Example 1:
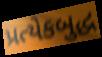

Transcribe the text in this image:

પ્રત્યેકબુદ્ધ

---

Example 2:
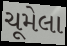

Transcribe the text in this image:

ચૂમેલા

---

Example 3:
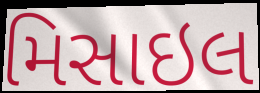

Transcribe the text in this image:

મિસાઇલ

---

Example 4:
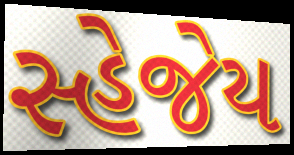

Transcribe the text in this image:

સ્હેજેય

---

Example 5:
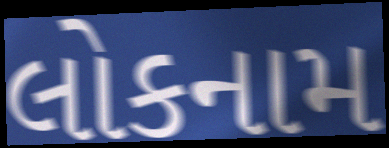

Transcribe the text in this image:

લોકનામ